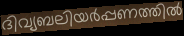
ദിവ്യബലിയർപ്പണത്തിൽ